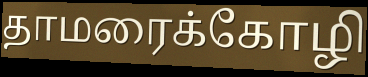
தாமரைக்கோழி